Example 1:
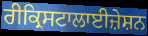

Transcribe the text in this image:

ਰੀਕ੍ਰਿਸਟਾਲਾਈਜ਼ੇਸ਼ਨ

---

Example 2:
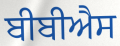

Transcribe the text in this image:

ਬੀਬੀਐਸ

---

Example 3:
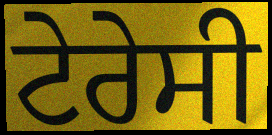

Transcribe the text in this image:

ਟੇਰੇਸੀ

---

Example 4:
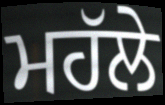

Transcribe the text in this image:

ਮਹੱਲੇ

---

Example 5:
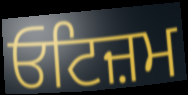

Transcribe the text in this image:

ਓਟਿਜ਼ਮ